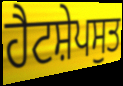
ਹੈਟਸ਼ੇਪਸੁਤ